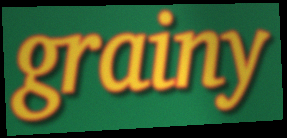
grainy